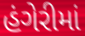
હંગેરીમાં